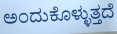
ಅಂದುಕೊಳ್ಳುತ್ತದೆ